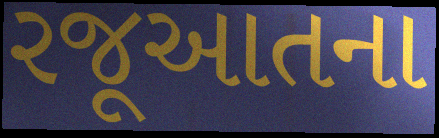
રજૂઆતના